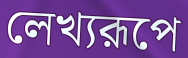
লেখ্যরূপে